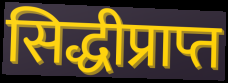
सिद्धीप्राप्त